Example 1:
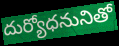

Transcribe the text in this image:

దుర్యోధనునితో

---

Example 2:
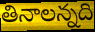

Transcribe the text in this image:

తినాలన్నది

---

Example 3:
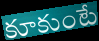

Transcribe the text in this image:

కూకుంటే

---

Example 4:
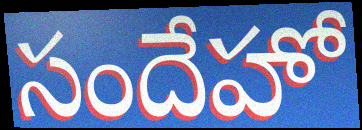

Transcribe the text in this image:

సందేహో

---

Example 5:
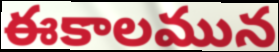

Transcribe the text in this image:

ఈకాలమున